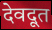
देवदूत